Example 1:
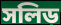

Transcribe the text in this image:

সলিড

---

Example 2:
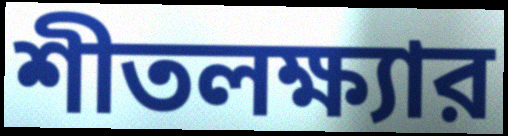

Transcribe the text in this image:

শীতলক্ষ্যার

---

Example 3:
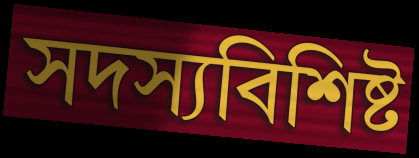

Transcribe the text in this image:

সদস্যবিশিষ্ট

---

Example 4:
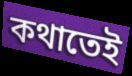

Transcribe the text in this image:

কথাতেই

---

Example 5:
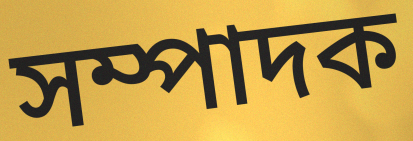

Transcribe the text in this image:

সম্পাদক